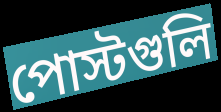
পোস্টগুলি